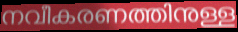
നവീകരണത്തിനുള്ള